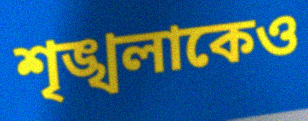
শৃঙ্খলাকেও